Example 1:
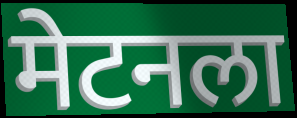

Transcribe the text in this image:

मेटनला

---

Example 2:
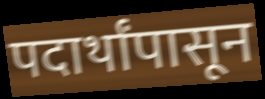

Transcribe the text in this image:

पदार्थांपासून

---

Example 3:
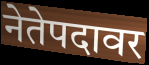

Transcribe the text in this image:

नेतेपदावर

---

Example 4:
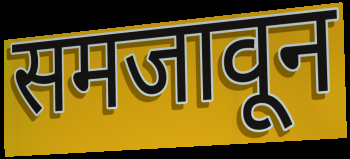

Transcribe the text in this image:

समजावून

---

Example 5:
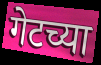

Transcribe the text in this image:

गेटच्या